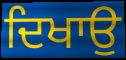
ਦਿਖਾਉ